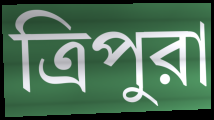
ত্রিপুরা